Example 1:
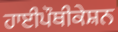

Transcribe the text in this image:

ਹਾਈਪੌਥੀਕੇਸ਼ਨ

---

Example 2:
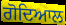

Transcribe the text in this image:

ਗੋਦਿਆਲ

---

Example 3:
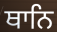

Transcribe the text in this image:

ਥਾਨਿ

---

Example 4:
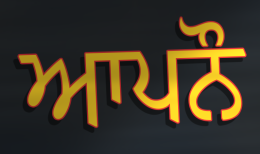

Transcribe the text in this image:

ਆਪਨੌ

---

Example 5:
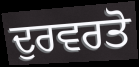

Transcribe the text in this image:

ਦੁਰਵਰਤੋ